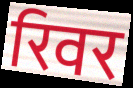
रिवर